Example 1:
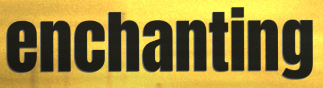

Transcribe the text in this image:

enchanting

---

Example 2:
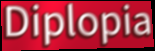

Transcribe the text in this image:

Diplopia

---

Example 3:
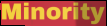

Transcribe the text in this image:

Minority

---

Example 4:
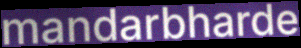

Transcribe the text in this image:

mandarbharde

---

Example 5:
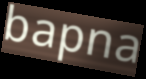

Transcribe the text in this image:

bapna